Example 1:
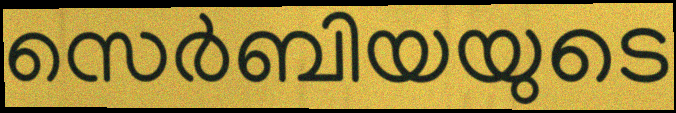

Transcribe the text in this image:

സെർബിയയുടെ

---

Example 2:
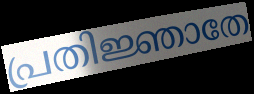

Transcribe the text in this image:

പ്രതിജ്ഞാതേ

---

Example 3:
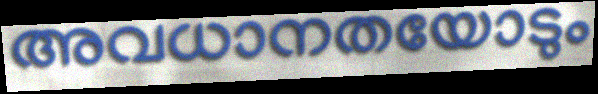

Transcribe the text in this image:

അവധാനതയോടും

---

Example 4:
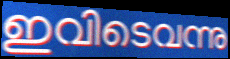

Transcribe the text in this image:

ഇവിടെവന്നു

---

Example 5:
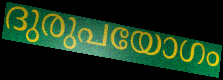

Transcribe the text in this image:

ദുരുപയോഗം